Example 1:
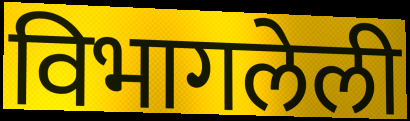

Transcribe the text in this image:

विभागलेली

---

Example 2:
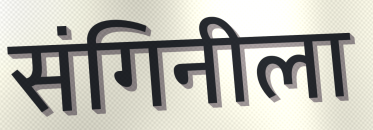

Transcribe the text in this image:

संगिनीला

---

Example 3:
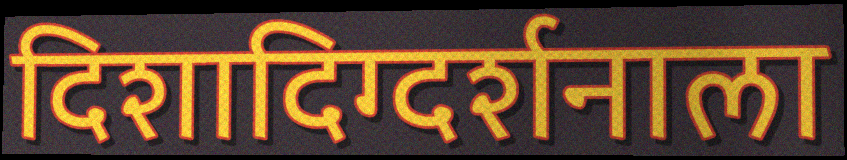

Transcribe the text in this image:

दिशादिग्दर्शनाला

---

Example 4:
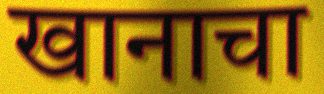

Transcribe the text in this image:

खानाचा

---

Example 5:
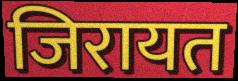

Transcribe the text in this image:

जिरायत